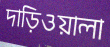
দাড়িওয়ালা